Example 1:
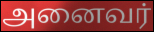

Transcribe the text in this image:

அனைவர்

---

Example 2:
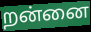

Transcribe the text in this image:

றன்னை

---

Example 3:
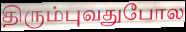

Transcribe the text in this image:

திரும்புவதுபோல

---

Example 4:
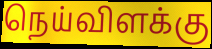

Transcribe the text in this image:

நெய்விளக்கு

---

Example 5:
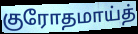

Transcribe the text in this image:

குரோதமாய்த்